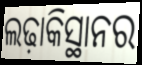
ଲଢ଼ାକିସ୍ଥାନର